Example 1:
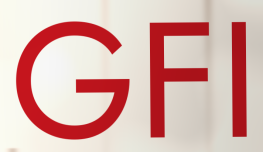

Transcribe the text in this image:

GFI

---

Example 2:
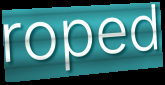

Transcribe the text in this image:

roped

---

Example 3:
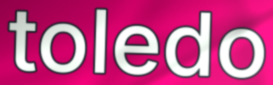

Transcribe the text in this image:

toledo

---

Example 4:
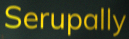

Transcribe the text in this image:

Serupally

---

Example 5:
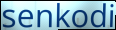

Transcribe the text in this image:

senkodi